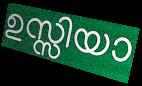
ഉസ്സിയാ